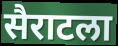
सैराटला